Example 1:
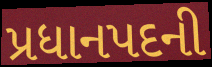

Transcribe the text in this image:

પ્રધાનપદની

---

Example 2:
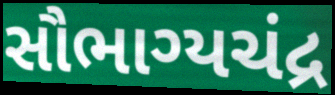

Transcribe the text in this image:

સૌભાગ્યચંદ્ર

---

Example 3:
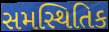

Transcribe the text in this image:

સમસ્થિતિક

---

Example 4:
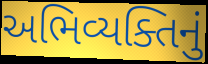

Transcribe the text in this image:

અભિવ્યક્તિનું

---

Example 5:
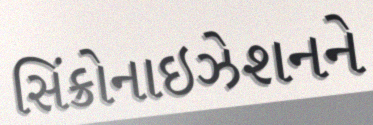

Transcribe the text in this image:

સિંક્રોનાઇઝેશનને